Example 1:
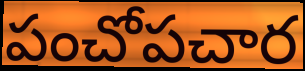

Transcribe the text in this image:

పంచోపచార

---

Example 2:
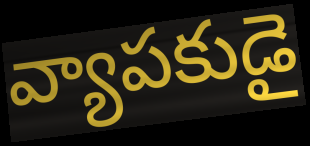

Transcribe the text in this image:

వ్యాపకుడై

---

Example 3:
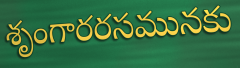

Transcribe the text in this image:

శృంగారరసమునకు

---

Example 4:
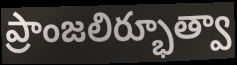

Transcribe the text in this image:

ప్రాంజలిర్భూత్వా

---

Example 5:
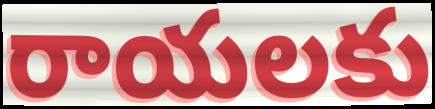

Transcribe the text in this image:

రాయలకు